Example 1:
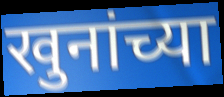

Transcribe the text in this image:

खुनांच्या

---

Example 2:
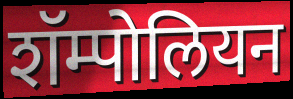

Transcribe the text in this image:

शॅम्पोलियन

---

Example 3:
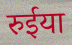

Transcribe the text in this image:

रुईया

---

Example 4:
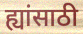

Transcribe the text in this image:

ह्यांसाठी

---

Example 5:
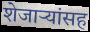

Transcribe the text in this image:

शेजाऱ्यांसह